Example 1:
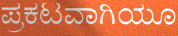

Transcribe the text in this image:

ಪ್ರಕಟವಾಗಿಯೂ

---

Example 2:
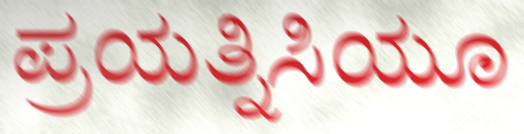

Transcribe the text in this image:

ಪ್ರಯತ್ನಿಸಿಯೂ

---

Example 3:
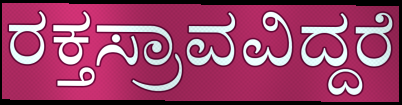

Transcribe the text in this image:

ರಕ್ತಸ್ರಾವವಿದ್ದರೆ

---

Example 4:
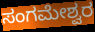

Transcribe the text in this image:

ಸಂಗಮೇಶ್ವರ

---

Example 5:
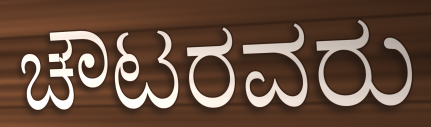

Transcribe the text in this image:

ಚೌಟರವರು